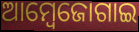
ଆମ୍ବେଜୋଗାଇ